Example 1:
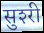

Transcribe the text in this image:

सुश्री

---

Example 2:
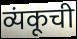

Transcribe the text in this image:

व्यंकूची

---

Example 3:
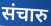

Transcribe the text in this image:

संचारु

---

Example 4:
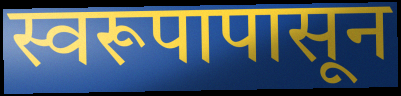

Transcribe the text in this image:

स्वरूपापासून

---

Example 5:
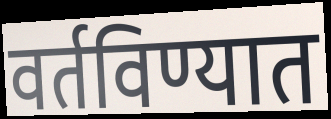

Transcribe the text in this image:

वर्तविण्यात